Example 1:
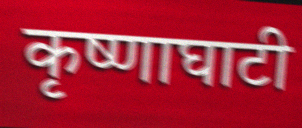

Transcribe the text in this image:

कृष्णाघाटी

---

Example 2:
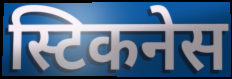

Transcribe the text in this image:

स्टिकनेस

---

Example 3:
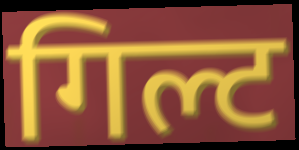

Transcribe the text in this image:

गिल्ट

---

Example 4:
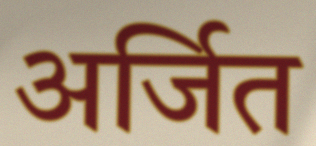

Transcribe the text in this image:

अर्जित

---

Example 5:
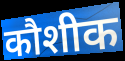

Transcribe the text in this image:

कौशीक